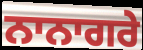
ਨਾਨਾਗਰੇ